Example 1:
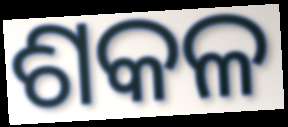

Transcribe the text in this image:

ଶକଳ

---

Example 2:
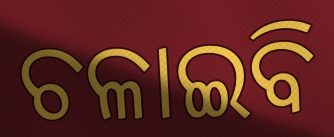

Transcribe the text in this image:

ଚଳାଇବି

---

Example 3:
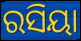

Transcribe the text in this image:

ରସିୟା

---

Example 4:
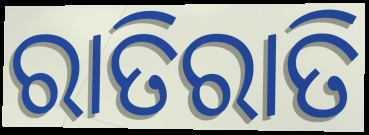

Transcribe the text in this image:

ରାତିରାତି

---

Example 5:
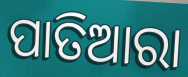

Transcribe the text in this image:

ପାତିଆରା